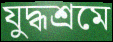
যুদ্ধশ্রমে